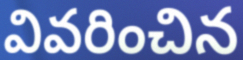
వివరించిన